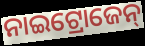
ନାଇଟ୍ରୋଜେନ୍